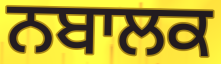
ਨਬਾਲਕ